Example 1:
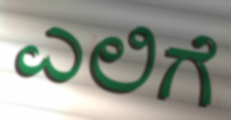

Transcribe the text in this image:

ಎಲಿಗೆ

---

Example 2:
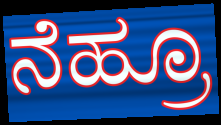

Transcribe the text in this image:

ನೆಹ್ರೂ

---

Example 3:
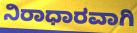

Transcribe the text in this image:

ನಿರಾಧಾರವಾಗಿ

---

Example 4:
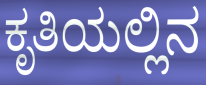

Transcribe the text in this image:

ಕೃತಿಯಲ್ಲಿನ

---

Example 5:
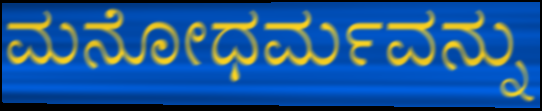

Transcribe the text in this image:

ಮನೋಧರ್ಮವನ್ನು